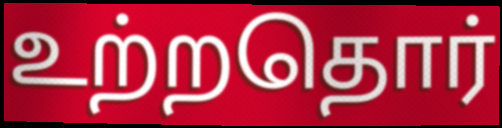
உற்றதொர்